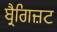
ਬ੍ਰੈਗਿਜ਼ਟ